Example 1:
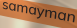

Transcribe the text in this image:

samayman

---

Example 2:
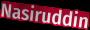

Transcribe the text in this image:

Nasiruddin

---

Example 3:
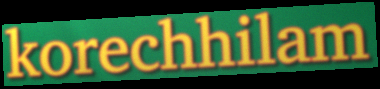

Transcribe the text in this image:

korechhilam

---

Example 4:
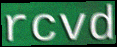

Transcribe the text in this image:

rcvd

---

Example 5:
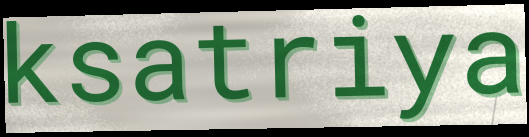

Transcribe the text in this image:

ksatriya